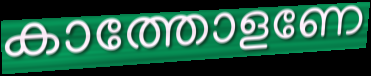
കാത്തോളണേ